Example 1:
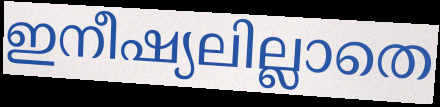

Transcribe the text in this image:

ഇനീഷ്യലില്ലാതെ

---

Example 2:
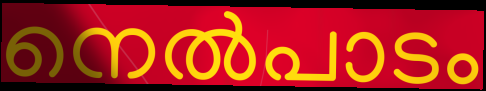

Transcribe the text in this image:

നെൽപാടം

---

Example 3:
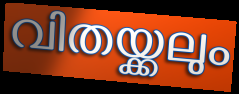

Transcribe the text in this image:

വിതയ്ക്കലും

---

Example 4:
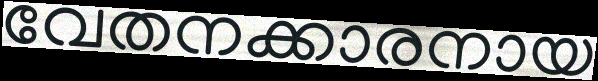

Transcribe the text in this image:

വേതനക്കാരനായ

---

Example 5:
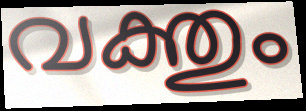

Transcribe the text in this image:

വക്തും